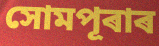
সোমপূৰাৰ